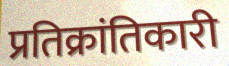
प्रतिक्रांतिकारी